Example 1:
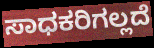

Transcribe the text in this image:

ಸಾಧಕರಿಗಲ್ಲದೆ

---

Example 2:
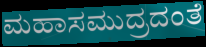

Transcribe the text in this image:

ಮಹಾಸಮುದ್ರದಂತೆ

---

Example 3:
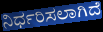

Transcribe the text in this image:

ನಿರ್ಧರಿಸಲಾಗಿದೆ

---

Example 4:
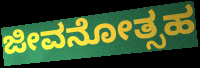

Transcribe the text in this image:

ಜೀವನೋತ್ಸಹ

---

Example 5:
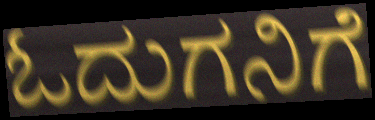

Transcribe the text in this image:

ಓದುಗನಿಗೆ